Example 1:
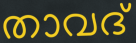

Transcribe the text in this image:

താവദ്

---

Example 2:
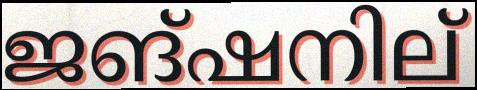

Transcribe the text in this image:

ജങ്ഷനില്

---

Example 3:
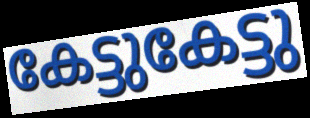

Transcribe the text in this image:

കേട്ടുകേട്ടു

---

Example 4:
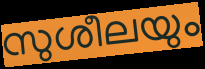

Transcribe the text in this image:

സുശീലയും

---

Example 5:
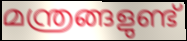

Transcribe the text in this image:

മന്ത്രങ്ങളുണ്ട്